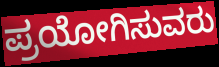
ಪ್ರಯೋಗಿಸುವರು